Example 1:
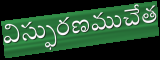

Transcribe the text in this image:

విస్ఫురణముచేత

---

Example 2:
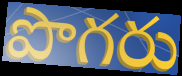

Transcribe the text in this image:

పొగరు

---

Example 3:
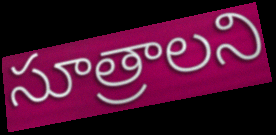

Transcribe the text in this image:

సూత్రాలని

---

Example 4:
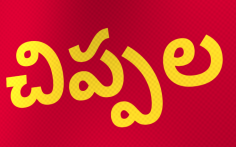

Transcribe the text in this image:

చిప్పల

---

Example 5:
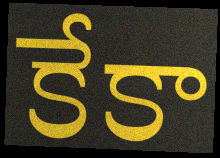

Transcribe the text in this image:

కేకా